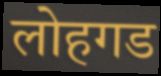
लोहगड